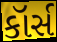
કૉર્સ